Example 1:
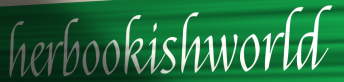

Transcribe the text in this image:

herbookishworld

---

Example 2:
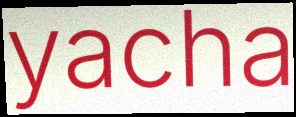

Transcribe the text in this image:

yacha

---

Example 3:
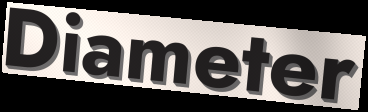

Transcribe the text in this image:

Diameter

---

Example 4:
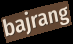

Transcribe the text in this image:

bajrang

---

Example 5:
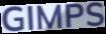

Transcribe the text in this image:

GIMPS